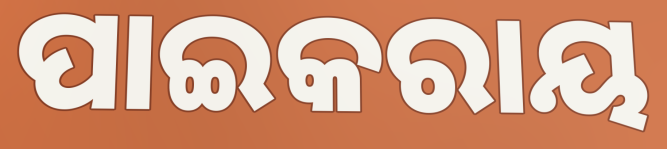
ପାଇକରାୟ